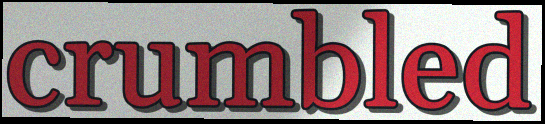
crumbled